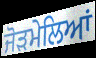
ਜੋੜਮੇਲਿਆਂ